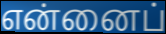
என்னைப்